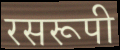
रसरूपी